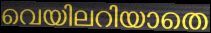
വെയിലറിയാതെ